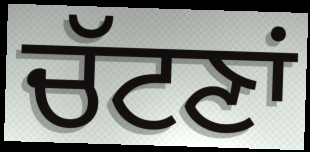
ਚੱਟਣਾਂ